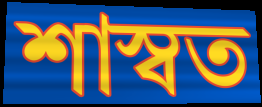
শাস্বত